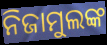
ନିଜାମୁଲଙ୍କ